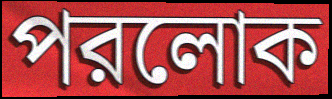
পরলোক